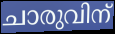
ചാരുവിന്